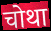
चोथा